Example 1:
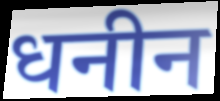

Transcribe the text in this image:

धनीन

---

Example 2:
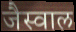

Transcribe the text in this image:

जैस्वाल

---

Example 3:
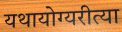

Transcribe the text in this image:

यथायोग्यरीत्या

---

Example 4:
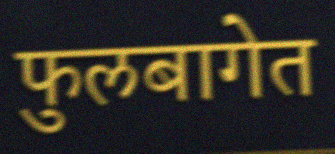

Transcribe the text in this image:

फुलबागेत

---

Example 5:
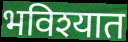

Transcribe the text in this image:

भविश्यात